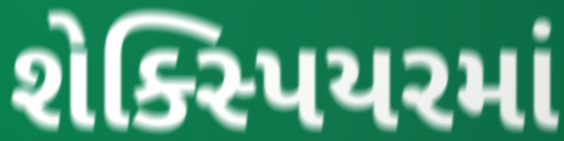
શેક્સ્પિયરમાં